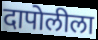
दापोलीला